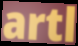
artl